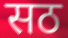
सठ